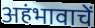
अहंभावाचें